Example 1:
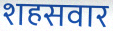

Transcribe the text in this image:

शहसवार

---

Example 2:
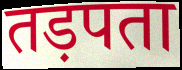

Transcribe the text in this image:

तड़पता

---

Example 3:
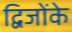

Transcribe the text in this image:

द्विजोंके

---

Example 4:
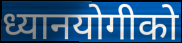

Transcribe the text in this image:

ध्यानयोगीको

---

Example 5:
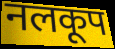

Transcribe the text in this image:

नलकूप